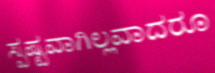
ಸ್ಪಷ್ಟವಾಗಿಲ್ಲವಾದರೂ